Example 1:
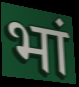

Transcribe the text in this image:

भां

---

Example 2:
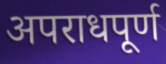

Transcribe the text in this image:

अपराधपूर्ण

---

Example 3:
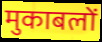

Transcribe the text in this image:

मुकाबलों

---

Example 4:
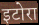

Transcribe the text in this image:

इटोरा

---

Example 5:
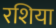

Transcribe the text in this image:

रशिया